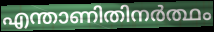
എന്താണിതിനർത്ഥം